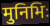
मुनिभिः